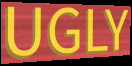
UGLY